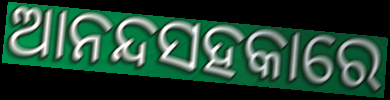
ଆନନ୍ଦସହକାରେ